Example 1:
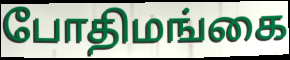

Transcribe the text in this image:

போதிமங்கை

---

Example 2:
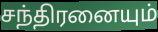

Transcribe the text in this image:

சந்திரனையும்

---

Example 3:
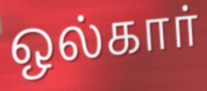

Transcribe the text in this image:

ஒல்கார்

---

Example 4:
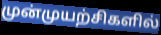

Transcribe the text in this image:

முன்முயற்சிகளில்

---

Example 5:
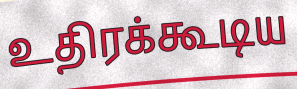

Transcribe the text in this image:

உதிரக்கூடிய